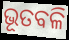
ଭୂତବଳି